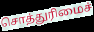
சொத்துரிமைச்